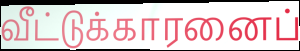
வீட்டுக்காரனைப்